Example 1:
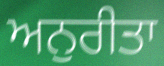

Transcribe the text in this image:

ਅਨੁਰੀਤਾ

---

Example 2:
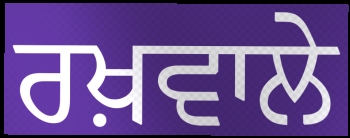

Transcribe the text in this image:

ਰਖ਼ਵਾਲੇ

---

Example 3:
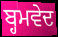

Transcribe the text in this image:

ਬ੍ਹਮਵੇਦ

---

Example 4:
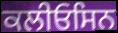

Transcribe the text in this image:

ਕਲੀਓਸਿਨ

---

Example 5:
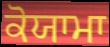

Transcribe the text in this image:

ਕੋਯਾਮਾ